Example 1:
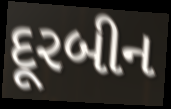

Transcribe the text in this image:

દૂરબીન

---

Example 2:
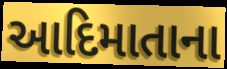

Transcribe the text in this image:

આદિમાતાના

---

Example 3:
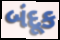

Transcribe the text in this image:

બંદૂક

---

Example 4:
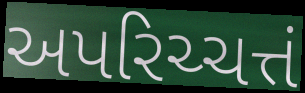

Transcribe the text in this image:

અપરિચ્ચત્તં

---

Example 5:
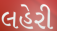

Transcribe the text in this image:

લહેરી